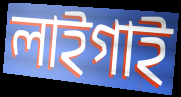
লাইগাই